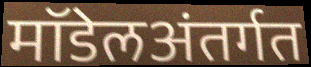
मॉडेलअंतर्गत